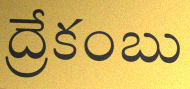
ద్రేకంబు